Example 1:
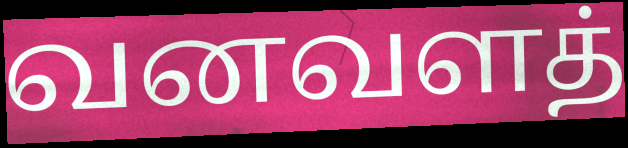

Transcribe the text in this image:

வனவளத்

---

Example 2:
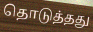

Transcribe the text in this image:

தொடுத்தது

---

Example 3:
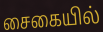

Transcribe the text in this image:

சைகையில்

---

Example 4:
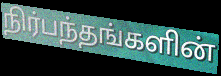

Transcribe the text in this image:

நிர்பந்தங்களின்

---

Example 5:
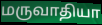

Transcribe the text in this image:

மருவாதியா